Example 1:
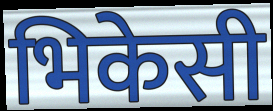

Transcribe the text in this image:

भिकेसी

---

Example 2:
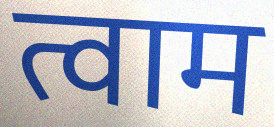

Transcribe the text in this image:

त्वाम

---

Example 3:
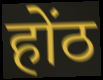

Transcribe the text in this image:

होंठ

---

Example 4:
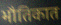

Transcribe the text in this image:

भौतिकात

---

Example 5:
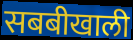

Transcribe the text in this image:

सबबीखाली